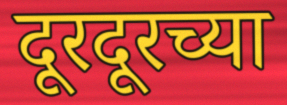
दूरदूरच्या